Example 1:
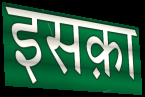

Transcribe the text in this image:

इसक़ा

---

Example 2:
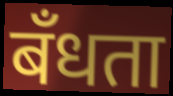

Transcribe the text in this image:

बँधता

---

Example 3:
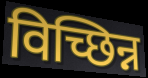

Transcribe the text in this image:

विच्छिन्न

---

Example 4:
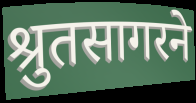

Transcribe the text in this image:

श्रुतसागरने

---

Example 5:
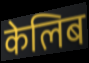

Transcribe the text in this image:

केलिब